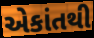
એકાંતથી